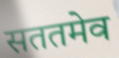
सततमेव